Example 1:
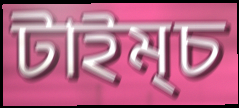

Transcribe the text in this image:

টাইম্‌চ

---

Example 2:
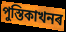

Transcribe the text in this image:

পুস্তিকাখনৰ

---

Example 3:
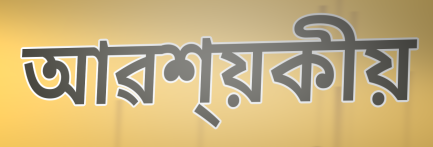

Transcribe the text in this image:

আৱশ্য়কীয়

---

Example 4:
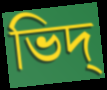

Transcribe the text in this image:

ভিদ্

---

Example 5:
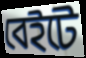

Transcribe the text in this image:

বেইটে